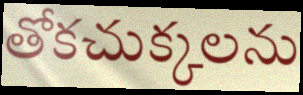
తోకచుక్కలను